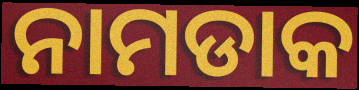
ନାମଡାକ